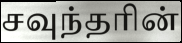
சவுந்தரின்